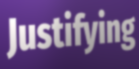
Justifying